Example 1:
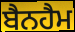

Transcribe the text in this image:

ਬੈਨਹੈਮ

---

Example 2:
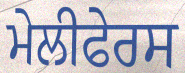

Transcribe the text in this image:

ਮੇਲੀਫੇਰਸ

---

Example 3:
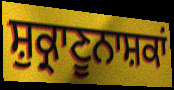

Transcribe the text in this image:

ਸ਼ੁਕ੍ਰਾਣੂਨਾਸ਼ਕਾਂ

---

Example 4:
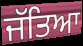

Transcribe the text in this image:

ਜੱਤਿਆ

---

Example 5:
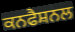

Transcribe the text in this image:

ਕਨਫੈਸ਼ਨਲ